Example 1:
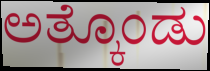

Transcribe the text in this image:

ಅತ್ಕೊಂಡು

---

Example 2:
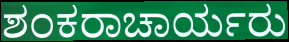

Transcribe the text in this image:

ಶಂಕರಾಚಾರ್ಯರು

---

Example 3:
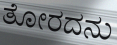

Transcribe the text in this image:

ತೋರದನು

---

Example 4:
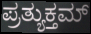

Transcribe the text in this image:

ಪ್ರತ್ಯುಕ್ತಮ್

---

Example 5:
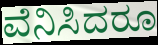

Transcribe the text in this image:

ವೆನಿಸಿದರೂ